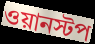
ওয়ানস্টপ